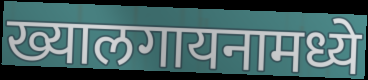
ख्यालगायनामध्ये